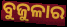
ବୁଜୁଳାର